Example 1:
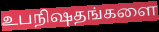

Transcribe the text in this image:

உபநிஷதங்களை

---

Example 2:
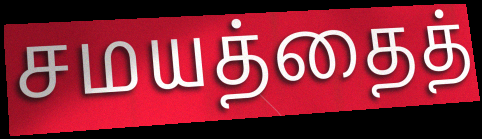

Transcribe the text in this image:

சமயத்தைத்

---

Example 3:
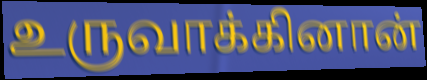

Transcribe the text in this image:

உருவாக்கினான்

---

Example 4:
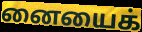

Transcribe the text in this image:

னையைக்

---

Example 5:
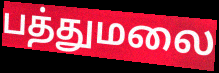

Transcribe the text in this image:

பத்துமலை